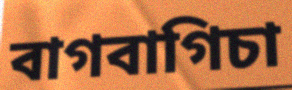
বাগবাগিচা